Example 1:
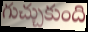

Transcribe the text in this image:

గుచ్చుకుంది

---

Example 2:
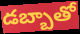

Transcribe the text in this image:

డబ్బాతో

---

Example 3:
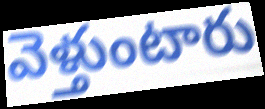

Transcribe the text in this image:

వెళ్తుంటారు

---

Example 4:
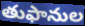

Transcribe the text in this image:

తుఫానుల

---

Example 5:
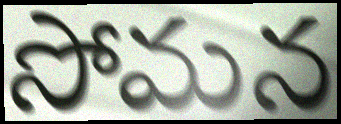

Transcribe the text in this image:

సోమన